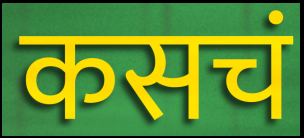
कसचं